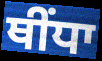
ਥੀਂਧਾ